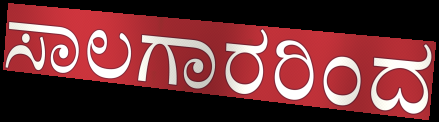
ಸಾಲಗಾರರಿಂದ